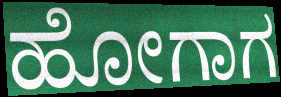
ಹೋಗಾಗ